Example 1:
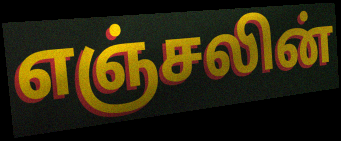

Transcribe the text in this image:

எஞ்சலின்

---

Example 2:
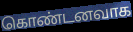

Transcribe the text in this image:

கொண்டனவாக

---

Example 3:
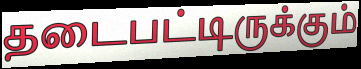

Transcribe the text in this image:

தடைபட்டிருக்கும்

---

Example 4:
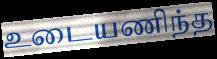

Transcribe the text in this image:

உடையணிந்த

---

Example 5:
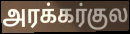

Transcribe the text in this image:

அரக்கர்குல